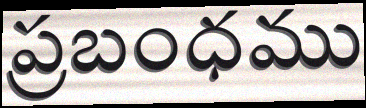
ప్రబంధము